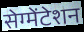
सेग्मेंटेशन